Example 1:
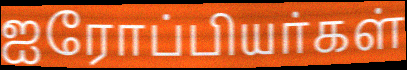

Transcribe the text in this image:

ஐரோப்பியர்கள்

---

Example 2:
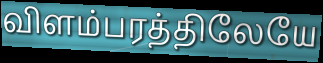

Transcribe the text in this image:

விளம்பரத்திலேயே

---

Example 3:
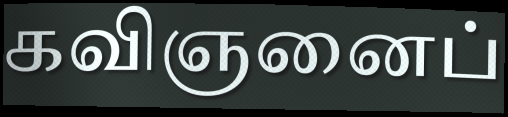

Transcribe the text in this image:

கவிஞனைப்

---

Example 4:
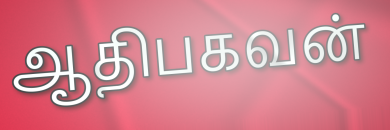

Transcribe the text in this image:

ஆதிபகவன்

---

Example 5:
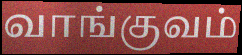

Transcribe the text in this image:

வாங்குவம்